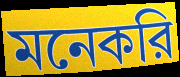
মনেকরি